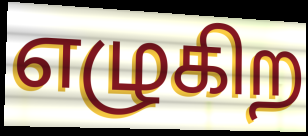
எழுகிற